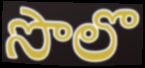
సొలొ